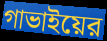
গাভাইয়ের